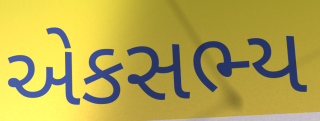
એકસભ્ય